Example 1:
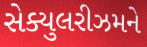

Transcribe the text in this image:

સેક્યુલરીઝમને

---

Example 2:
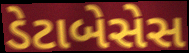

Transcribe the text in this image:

ડેટાબેસેસ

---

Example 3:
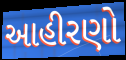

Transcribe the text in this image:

આહીરણો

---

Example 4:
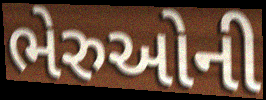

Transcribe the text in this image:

ભેરુઓની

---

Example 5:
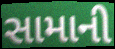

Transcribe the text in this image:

સામાની